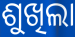
ଶୁଖିଲା